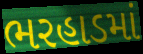
ભરહાડમાં